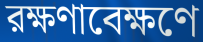
রক্ষণাবেক্ষণে